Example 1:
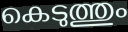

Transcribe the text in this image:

കെടുത്തും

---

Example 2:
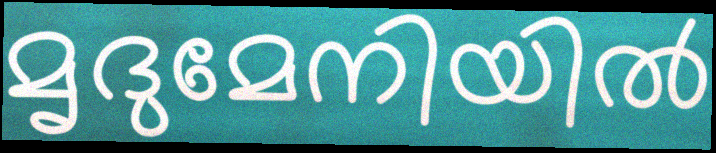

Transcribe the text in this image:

മൃദുമേനിയിൽ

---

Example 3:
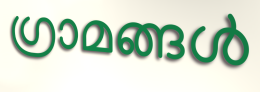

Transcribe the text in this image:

ഗ്രാമങ്ങൾ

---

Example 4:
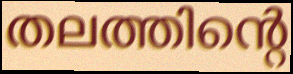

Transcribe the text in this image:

തലത്തിന്റെ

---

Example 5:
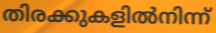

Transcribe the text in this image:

തിരക്കുകളിൽനിന്ന്